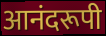
आनंदरूपी